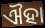
ଐହା